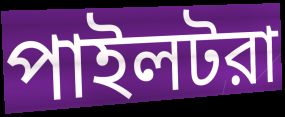
পাইলটরা